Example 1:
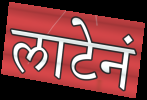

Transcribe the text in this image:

लाटेनं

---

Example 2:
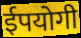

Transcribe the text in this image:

ईपयोगी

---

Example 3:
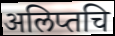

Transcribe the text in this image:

अलिप्तचि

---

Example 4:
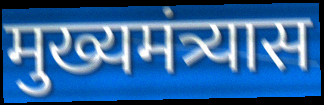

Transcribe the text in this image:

मुख्यमंत्र्यास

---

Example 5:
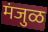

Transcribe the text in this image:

मंजुळ